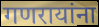
गणरायांना